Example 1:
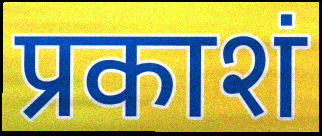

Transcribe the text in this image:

प्रकाशं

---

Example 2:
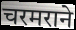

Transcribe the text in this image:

चरमराने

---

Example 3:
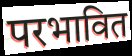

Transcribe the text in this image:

परभावित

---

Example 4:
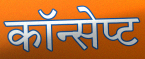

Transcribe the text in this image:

कॉन्‍सेप्‍ट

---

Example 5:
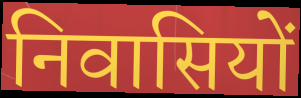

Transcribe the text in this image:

निवासियों